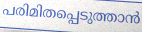
പരിമിതപ്പെടുത്താൻ